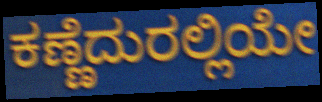
ಕಣ್ಣೆದುರಲ್ಲಿಯೇ